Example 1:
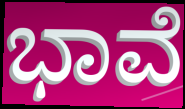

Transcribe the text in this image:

ಭಾವೆ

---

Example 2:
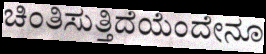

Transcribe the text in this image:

ಚಿಂತಿಸುತ್ತಿದೆಯೆಂದೇನೂ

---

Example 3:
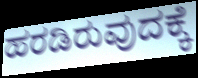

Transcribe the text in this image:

ಹರಡಿರುವುದಕ್ಕೆ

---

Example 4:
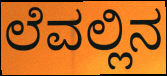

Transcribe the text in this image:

ಲೆವಲ್ಲಿನ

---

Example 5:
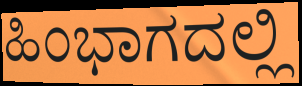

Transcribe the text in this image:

ಹಿಂಭಾಗದಲ್ಲಿ